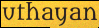
uthayan